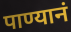
पाण्यानं